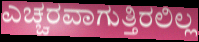
ಎಚ್ಚರವಾಗುತ್ತಿರಲಿಲ್ಲ